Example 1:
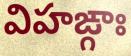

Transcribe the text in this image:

విహఙ్గాః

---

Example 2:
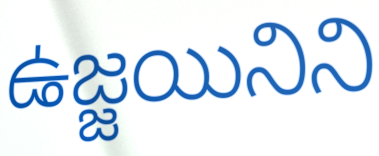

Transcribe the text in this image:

ఉజ్జయినిని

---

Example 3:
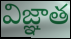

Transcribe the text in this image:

విజ్ఞాత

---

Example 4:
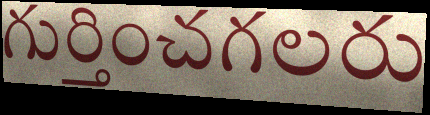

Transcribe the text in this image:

గుర్తించగలరు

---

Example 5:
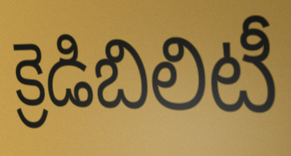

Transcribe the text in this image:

క్రెడిబిలిటీ